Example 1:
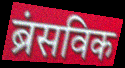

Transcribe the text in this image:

ब्रंसविक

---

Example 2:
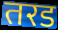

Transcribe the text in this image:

तरड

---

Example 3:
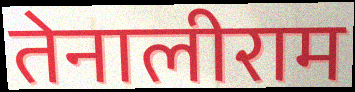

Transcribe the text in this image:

तेनालीराम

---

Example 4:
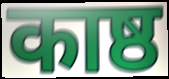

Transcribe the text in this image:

काष्ठ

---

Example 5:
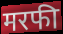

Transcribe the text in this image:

मरफी